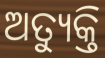
ଅତ୍ୟୁକ୍ତି